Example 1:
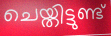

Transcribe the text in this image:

ചെയ്തിട്ടുണ്ട്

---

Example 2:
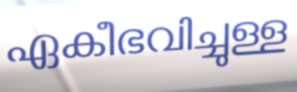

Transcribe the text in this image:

ഏകീഭവിച്ചുള്ള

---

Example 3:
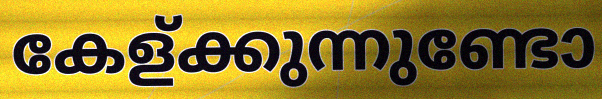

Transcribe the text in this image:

കേള്ക്കുന്നുണ്ടോ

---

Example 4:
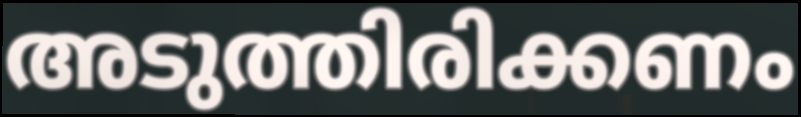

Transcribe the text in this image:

അടുത്തിരിക്കണം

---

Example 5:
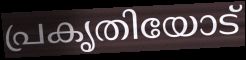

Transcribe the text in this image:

പ്രകൃതിയോട്